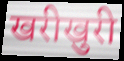
खरीखुरी